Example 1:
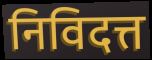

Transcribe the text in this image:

निविदत्त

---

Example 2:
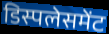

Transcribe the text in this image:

डिस्पलेसमेंट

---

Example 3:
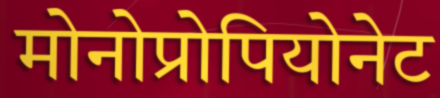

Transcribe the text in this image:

मोनोप्रोपियोनेट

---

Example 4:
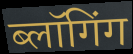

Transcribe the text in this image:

ब्लॉगिंग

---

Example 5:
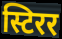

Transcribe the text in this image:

स्टिरर